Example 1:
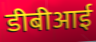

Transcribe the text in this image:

डीबीआई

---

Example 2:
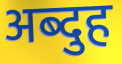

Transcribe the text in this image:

अब्दुह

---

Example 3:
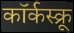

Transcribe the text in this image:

कॉर्कस्क्रू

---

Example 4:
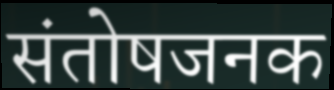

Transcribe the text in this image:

संतोषजनक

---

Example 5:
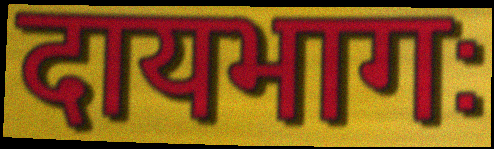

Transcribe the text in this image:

दायभागः